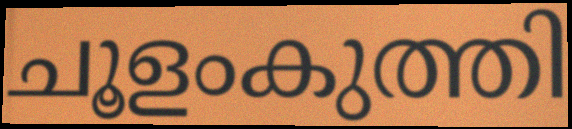
ചൂളംകുത്തി